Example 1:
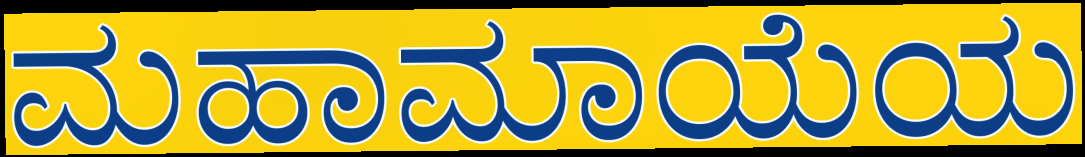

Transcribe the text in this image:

ಮಹಾಮಾಯೆಯ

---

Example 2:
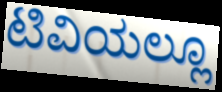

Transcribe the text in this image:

ಟಿವಿಯಲ್ಲೂ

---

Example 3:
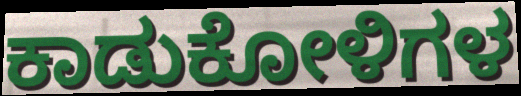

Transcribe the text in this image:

ಕಾಡುಕೋಳಿಗಳ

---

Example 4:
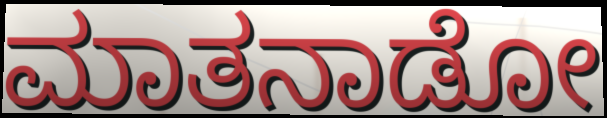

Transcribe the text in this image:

ಮಾತನಾಡೋ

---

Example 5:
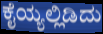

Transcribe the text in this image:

ಕೈಯ್ಯಲ್ಲಿಡಿದು